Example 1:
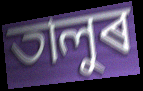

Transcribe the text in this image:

তালুৰ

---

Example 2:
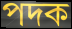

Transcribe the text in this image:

পদক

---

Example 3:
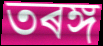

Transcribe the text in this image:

তৰঙ্গ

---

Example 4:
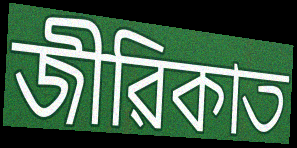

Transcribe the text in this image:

জীৱিকাত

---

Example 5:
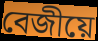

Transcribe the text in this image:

বেজীয়ে